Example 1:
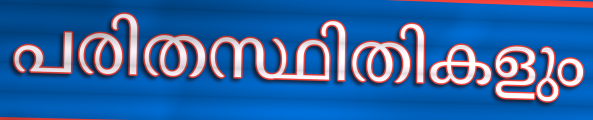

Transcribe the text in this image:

പരിതസ്ഥിതികളും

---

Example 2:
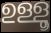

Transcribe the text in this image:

ഉള്ളൂ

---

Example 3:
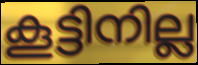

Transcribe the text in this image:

കൂട്ടിനില്ല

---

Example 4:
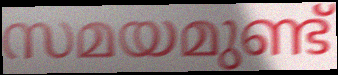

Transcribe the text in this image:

സമയമുണ്ട്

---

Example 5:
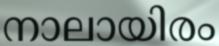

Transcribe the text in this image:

നാലായിരം